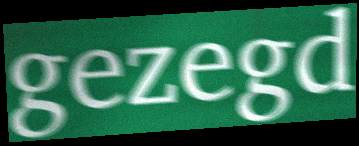
gezegd